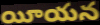
యీయన